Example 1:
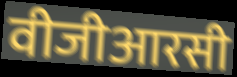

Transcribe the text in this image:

वीजीआरसी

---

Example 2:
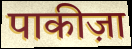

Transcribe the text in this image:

पाकीज़ा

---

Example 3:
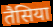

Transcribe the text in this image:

तैसिया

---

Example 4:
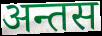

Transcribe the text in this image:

अन्तस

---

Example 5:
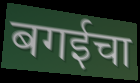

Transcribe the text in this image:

बगईचा